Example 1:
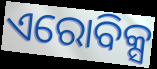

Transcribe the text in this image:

ଏରୋବିକ୍ସ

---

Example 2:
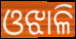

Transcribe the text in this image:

ଓଝାଳି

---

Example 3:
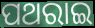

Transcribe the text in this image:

ପଥରାଇ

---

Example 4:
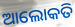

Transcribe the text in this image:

ଆଲୋକତି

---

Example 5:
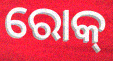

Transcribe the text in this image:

ରୋକ୍